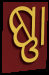
ଷ୍ଣା